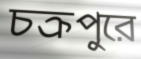
চক্রপুরে